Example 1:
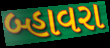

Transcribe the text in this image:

બ્હાવરા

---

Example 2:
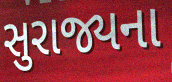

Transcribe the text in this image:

સુરાજ્યના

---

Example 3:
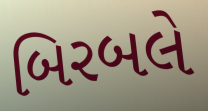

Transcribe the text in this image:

બિરબલે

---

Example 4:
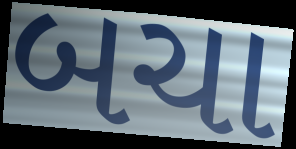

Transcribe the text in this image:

બચા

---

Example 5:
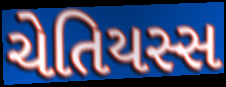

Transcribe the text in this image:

ચેતિયસ્સ